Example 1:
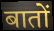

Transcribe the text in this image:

बातों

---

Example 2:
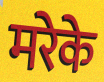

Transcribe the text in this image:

मरेके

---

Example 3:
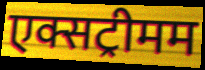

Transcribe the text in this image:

एक्सट्रीमम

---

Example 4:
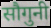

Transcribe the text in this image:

सौगुनी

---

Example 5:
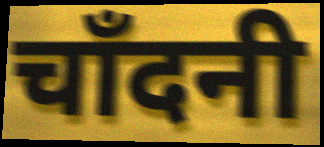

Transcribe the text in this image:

चाँदनी